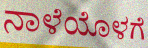
ನಾಳೆಯೊಳಗೆ